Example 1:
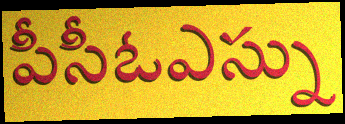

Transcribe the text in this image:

పీసీఓఎస్ను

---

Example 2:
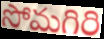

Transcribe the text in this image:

సోమగిరి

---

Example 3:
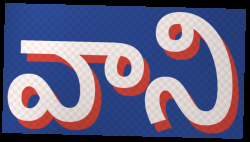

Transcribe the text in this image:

వాని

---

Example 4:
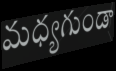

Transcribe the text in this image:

మధ్యగుండా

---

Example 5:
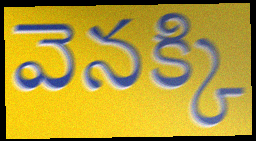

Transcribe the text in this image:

వెనక్కి